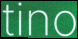
tino